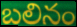
బలినం